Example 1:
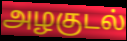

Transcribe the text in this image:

அழகுடல்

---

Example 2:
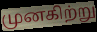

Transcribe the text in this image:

முனகிற்று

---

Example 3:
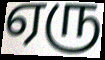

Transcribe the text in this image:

ஏரு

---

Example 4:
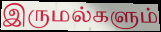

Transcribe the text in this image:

இருமல்களும்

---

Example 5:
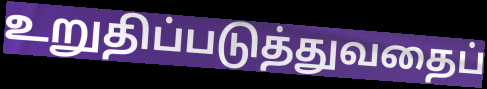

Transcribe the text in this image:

உறுதிப்படுத்துவதைப்